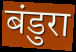
बंडुरा